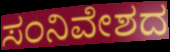
ಸಂನಿವೇಶದ